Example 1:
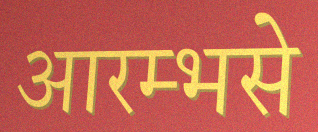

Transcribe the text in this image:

आरम्भसे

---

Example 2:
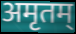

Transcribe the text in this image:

अमृतम्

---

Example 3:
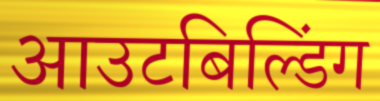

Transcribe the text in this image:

आउटबिल्डिंग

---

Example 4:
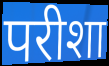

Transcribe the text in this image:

परीशा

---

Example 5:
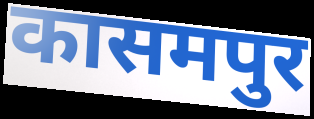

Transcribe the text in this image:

कासमपुर